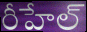
రీహేల్